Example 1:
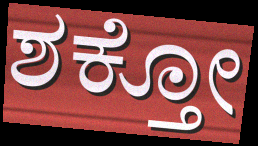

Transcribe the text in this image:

ಶಕ್ತೋ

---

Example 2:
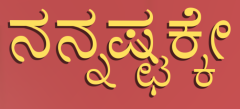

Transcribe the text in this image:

ನನ್ನಷ್ಟಕ್ಕೇ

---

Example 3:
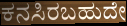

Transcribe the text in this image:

ಕನಸಿರಬಹುದೇ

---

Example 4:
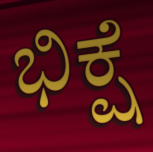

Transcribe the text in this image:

ಭಿಕ್ಷೆ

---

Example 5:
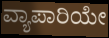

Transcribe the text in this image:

ವ್ಯಾಪಾರಿಯೇ